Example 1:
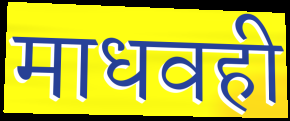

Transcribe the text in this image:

माधवही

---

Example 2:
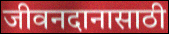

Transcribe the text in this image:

जीवनदानासाठी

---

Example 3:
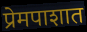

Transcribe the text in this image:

प्रेमपाशात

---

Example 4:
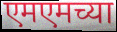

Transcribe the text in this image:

एमएमच्या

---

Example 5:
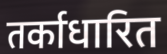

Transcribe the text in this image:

तर्काधारित